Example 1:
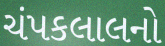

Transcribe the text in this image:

ચંપકલાલનો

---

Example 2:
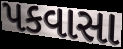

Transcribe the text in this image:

પકવાસા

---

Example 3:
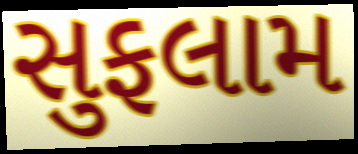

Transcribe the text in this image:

સુફલામ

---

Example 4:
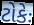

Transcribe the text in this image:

ટોકેઃ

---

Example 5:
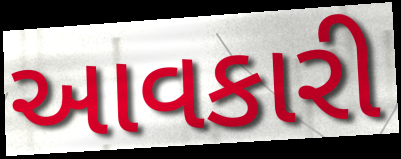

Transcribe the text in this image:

આવકારી